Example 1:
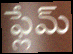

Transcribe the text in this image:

ఫ్లేమ్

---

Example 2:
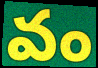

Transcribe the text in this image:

వం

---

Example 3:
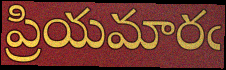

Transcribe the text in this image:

ప్రియమారఁ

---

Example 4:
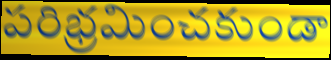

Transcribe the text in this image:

పరిభ్రమించకుండా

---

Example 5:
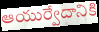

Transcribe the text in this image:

ఆయుర్వేదానికి